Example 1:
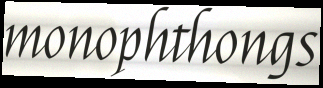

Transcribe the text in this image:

monophthongs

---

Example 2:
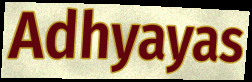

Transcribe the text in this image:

Adhyayas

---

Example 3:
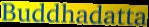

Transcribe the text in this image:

Buddhadatta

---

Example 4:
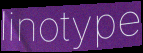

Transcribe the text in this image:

linotype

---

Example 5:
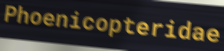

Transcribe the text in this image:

Phoenicopteridae